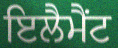
ਇਲੈਮੈਂਟ